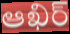
ఆఖిర్